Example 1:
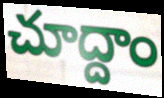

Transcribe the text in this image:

చూద్దాం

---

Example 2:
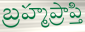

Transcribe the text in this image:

బ్రహ్మప్రాప్తి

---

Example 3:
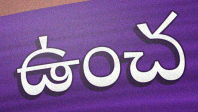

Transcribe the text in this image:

ఉంచ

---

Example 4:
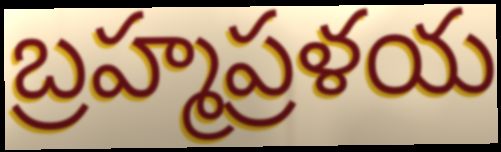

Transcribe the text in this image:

బ్రహ్మప్రళయ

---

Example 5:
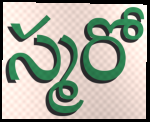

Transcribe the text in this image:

స్మరో